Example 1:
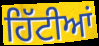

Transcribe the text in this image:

ਹਿੱਟੀਆਂ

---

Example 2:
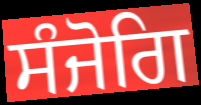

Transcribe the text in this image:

ਸੰਜੋਗਿ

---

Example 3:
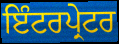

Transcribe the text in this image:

ਇੰਟਰਪ੍ਰੇਟਰ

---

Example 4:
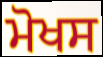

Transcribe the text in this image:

ਮੋਖਸ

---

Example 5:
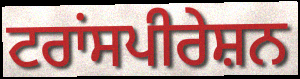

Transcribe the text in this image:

ਟਰਾਂਸਪੀਰੇਸ਼ਨ